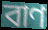
বাণ